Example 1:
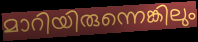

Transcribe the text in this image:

മാറിയിരുന്നെങ്കിലും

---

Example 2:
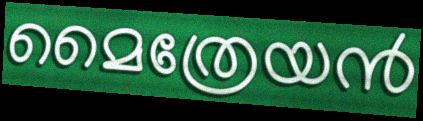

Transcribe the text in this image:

മൈത്രേയൻ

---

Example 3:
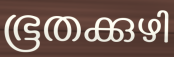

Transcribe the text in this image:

ഭൂതക്കുഴി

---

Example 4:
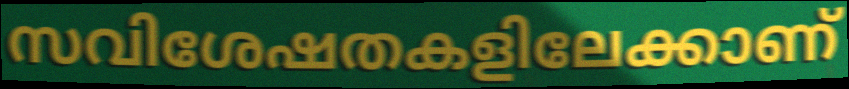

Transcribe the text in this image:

സവിശേഷതകളിലേക്കാണ്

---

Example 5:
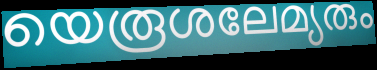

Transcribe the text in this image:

യെരൂശലേമ്യരും